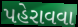
પહેરાવવા